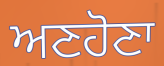
ਅਣਹੋਣਾ